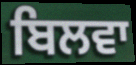
ਬਿਲਵਾ